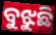
ବୁଝୁଛି